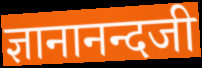
ज्ञानानन्दजी